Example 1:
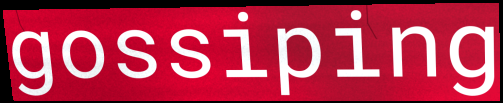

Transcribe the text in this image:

gossiping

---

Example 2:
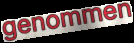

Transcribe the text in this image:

genommen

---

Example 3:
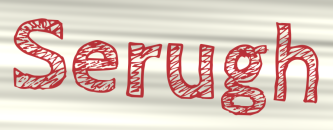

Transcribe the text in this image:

Serugh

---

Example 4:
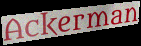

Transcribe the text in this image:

Ackerman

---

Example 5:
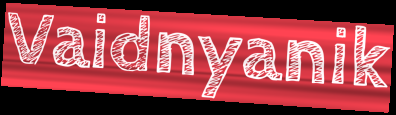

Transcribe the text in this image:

Vaidnyanik